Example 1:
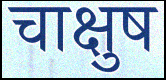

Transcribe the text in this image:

चाक्षुष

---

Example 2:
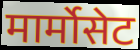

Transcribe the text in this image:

मार्मोसेट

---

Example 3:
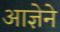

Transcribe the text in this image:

आज्ञेने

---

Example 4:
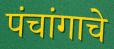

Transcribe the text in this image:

पंचांगाचे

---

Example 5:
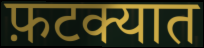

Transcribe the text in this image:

फ़टक्यात